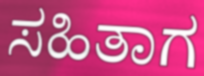
ಸಹಿತಾಗ